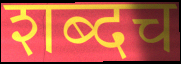
शब्दच